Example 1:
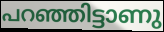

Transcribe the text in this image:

പറഞ്ഞിട്ടാണു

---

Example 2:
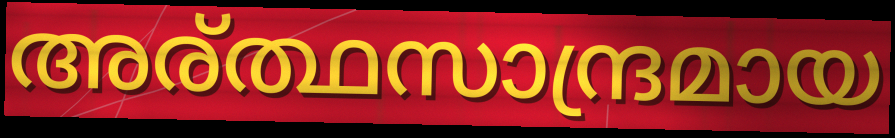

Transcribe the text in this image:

അര്ത്ഥസാന്ദ്രമായ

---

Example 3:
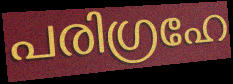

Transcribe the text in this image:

പരിഗ്രഹേ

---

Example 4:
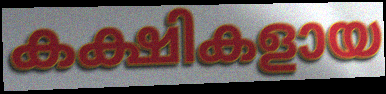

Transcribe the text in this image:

കക്ഷികളായ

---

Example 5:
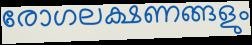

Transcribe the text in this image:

രോഗലക്ഷണങ്ങളും